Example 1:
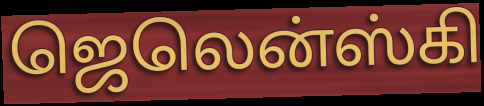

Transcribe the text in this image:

ஜெலென்ஸ்கி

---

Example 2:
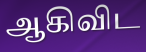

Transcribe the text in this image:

ஆகிவிட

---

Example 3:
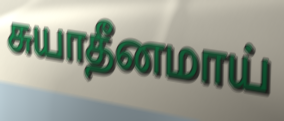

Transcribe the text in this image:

சுயாதீனமாய்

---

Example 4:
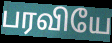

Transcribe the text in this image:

பரவியே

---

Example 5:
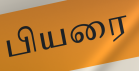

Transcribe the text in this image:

பியரை